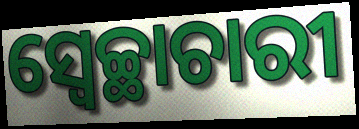
ସ୍ଵେଚ୍ଛାଚାରୀ